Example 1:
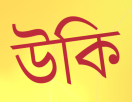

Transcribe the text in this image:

উকি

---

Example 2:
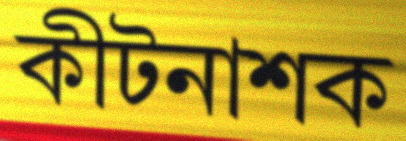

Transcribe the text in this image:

কীটনাশক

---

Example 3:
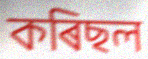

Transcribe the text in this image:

কৰিছল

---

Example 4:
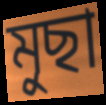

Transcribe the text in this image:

মুছা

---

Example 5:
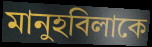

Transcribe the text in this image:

মানুহবিলাকে